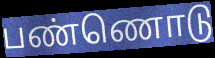
பண்ணொடு